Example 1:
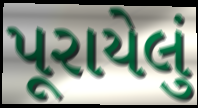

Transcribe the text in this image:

પૂરાયેલું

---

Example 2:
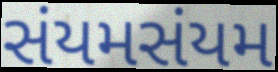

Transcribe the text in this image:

સંયમસંયમ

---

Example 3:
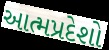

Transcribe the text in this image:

આત્મપ્રદેશો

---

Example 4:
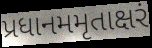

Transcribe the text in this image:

પ્રધાનમમૃતાક્ષરં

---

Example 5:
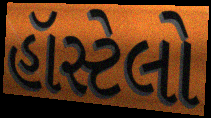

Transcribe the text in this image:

હૉસ્ટેલો